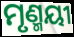
ମୃଣ୍ମୟୀ